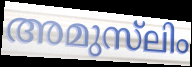
അമുസ്‌ലിം